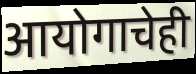
आयोगाचेही